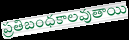
ప్రతిబంధకాలవుతాయి